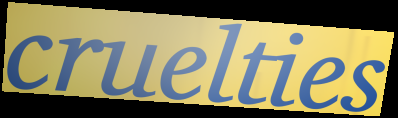
cruelties